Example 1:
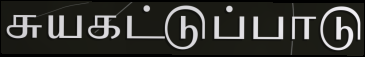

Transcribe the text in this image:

சுயகட்டுப்பாடு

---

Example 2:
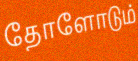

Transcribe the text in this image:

தோளோடும்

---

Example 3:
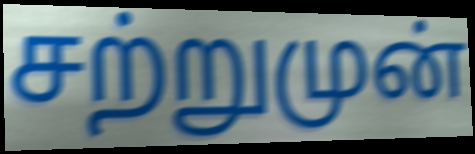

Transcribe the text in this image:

சற்றுமுன்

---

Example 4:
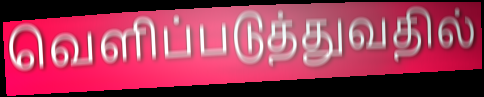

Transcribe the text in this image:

வெளிப்படுத்துவதில்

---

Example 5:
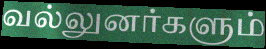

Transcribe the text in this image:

வல்லுனர்களும்